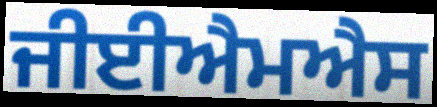
ਜੀਈਐਮਐਸ